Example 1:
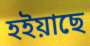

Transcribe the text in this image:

হইয়াছে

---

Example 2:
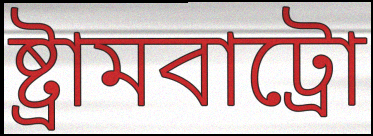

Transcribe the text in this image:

ষ্ট্ৰামবাট্ৰো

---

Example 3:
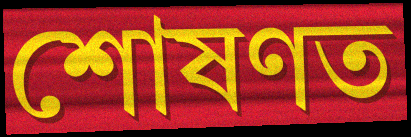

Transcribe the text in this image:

শোষণত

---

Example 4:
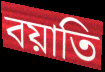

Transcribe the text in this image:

বয়াতি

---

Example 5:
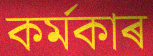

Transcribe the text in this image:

কৰ্মকাৰ